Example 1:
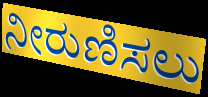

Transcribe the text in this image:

ನೀರುಣಿಸಲು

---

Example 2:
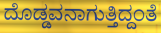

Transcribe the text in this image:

ದೊಡ್ಡವನಾಗುತ್ತಿದ್ದಂತೆ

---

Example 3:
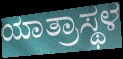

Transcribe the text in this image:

ಯಾತ್ರಾಸ್ಥಳ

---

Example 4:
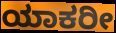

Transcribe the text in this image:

ಯಾಕರೀ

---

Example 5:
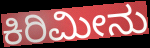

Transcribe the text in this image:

ಕಿರಿಮೀನು